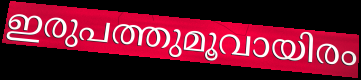
ഇരുപത്തുമൂവായിരം